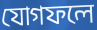
যোগফলে